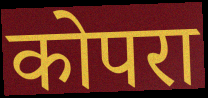
कोपरा